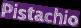
Pistachio